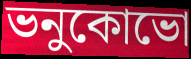
ভনুকোভো